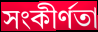
সংকীর্ণতা